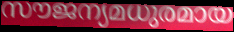
സൗജന്യമധുരമായ